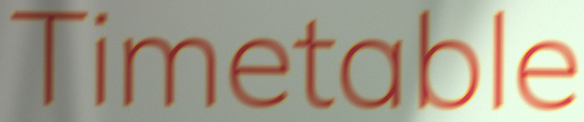
Timetable